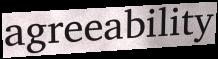
agreeability